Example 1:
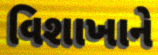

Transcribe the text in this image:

વિશાખાને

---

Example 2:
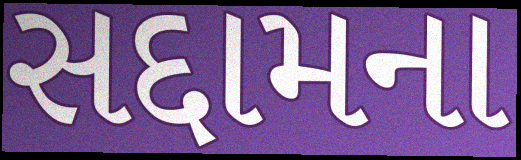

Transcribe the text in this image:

સદ્દામના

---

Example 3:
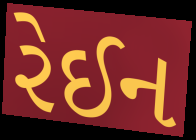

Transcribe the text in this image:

રેઈન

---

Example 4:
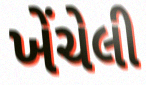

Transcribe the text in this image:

ખેંચેલી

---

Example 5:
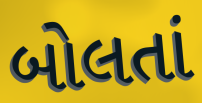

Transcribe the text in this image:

બોલતાં